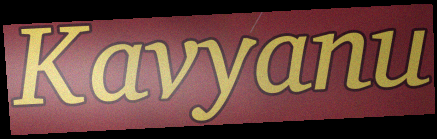
Kavyanu